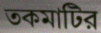
তকমাটির